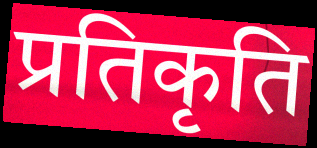
प्रतिकृति